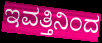
ಇವತ್ತಿನಿಂದ